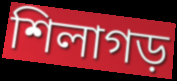
শিলাগড়